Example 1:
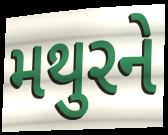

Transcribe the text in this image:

મથુરને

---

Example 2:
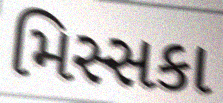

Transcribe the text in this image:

મિસ્સકા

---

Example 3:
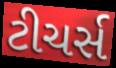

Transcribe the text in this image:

ટીચર્સ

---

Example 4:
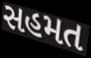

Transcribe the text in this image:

સહમત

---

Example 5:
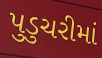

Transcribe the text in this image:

પુડુચરીમાં